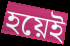
হয়েই